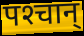
पश्चान्